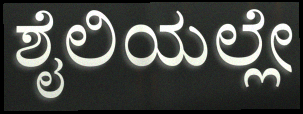
ಶೈಲಿಯಲ್ಲೇ